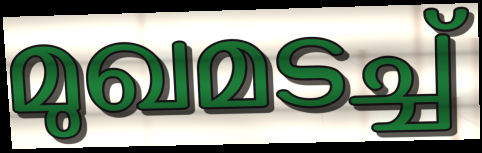
മുഖമടച്ച്